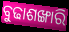
ବୁଢାଶଙ୍ଖାରି